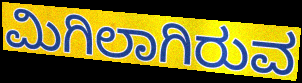
ಮಿಗಿಲಾಗಿರುವ